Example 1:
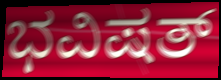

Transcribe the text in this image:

ಭವಿಷತ್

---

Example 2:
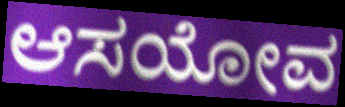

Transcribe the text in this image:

ಆಸಯೋವ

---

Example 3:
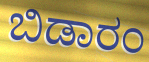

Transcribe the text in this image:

ಬಿಡಾರಂ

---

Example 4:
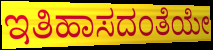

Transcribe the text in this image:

ಇತಿಹಾಸದಂತೆಯೇ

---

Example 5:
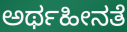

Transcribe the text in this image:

ಅರ್ಥಹೀನತೆ